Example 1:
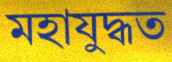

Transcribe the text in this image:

মহাযুদ্ধত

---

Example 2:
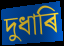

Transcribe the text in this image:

দুধাৰি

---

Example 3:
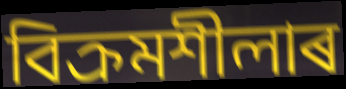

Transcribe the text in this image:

বিক্ৰমশীলাৰ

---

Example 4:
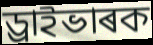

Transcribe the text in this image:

ড্ৰাইভাৰক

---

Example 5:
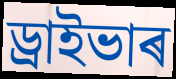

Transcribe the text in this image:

ড্ৰাইভাৰ